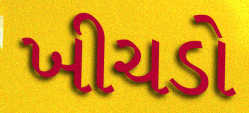
ખીચડો